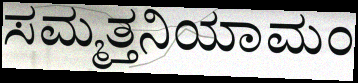
ಸಮ್ಮತ್ತನಿಯಾಮಂ